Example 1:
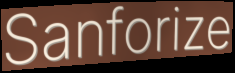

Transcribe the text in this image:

Sanforize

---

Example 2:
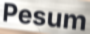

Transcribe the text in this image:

Pesum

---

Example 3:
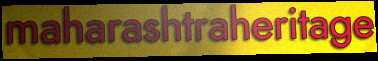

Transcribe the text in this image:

maharashtraheritage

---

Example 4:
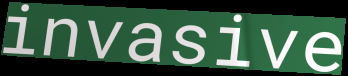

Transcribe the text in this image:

invasive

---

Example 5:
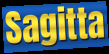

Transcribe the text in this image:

Sagitta